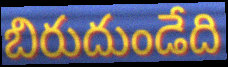
బిరుదుండేది